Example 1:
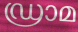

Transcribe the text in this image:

ഡ്രാമ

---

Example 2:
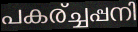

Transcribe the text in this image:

പകര്ച്ചപ്പനി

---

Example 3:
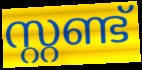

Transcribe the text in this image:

സ്റ്റണ്ട്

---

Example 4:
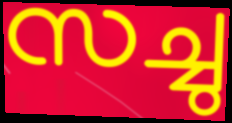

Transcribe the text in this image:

സച്ചു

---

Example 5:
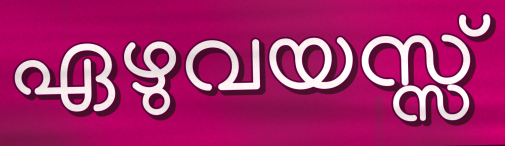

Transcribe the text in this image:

ഏഴുവയസ്സ്